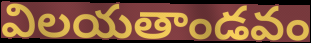
విలయతాండవం